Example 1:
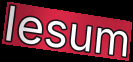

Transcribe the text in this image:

Iesum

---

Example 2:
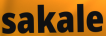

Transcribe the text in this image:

sakale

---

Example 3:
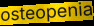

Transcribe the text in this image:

osteopenia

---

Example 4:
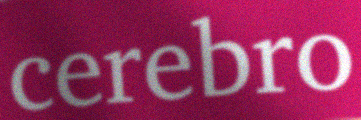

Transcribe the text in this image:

cerebro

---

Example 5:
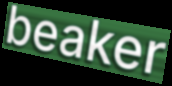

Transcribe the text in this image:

beaker